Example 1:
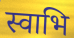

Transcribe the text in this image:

स्वाभि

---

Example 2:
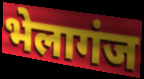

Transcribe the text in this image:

भेलागंज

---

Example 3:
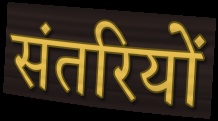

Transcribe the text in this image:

संतरियों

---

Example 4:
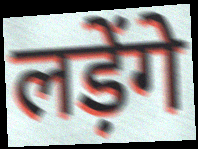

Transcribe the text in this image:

लड़ेंगे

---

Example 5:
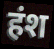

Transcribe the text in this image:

हंश